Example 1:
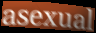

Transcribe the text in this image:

asexual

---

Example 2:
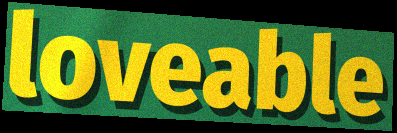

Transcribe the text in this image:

loveable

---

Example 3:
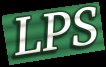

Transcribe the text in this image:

LPS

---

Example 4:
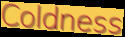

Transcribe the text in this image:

Coldness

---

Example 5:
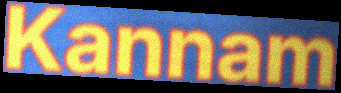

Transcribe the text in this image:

Kannam